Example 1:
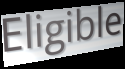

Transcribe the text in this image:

Eligible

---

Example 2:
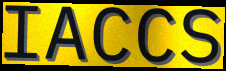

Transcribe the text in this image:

IACCS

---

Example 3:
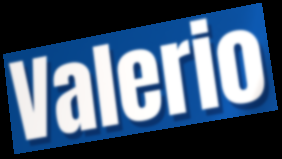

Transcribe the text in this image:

Valerio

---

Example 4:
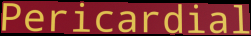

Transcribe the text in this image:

Pericardial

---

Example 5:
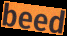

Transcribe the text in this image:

beed